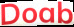
Doab